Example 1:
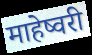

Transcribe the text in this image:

माहेष्वरी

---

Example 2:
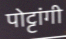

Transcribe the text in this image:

पोट्टांगी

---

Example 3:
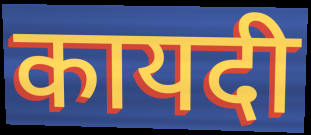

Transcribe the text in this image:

कायदी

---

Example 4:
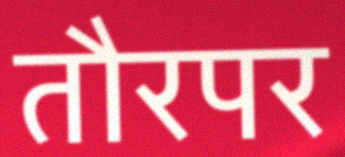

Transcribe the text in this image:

तौरपर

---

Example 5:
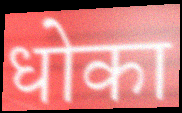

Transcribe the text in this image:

धोका